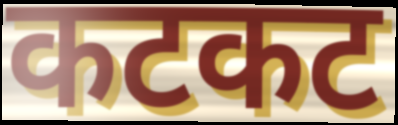
कटकट